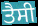
ਤੈਸੀ